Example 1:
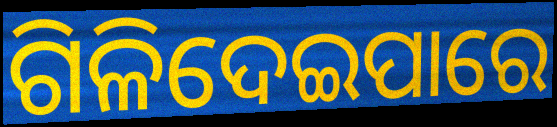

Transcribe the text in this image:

ଗିଳିଦେଇପାରେ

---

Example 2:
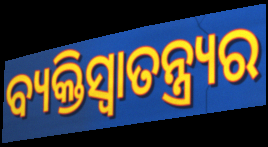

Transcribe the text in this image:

ବ୍ୟକ୍ତିସ୍ୱାତନ୍ତ୍ର୍ୟର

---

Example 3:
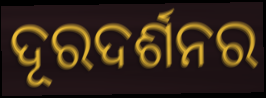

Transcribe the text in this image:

ଦୂରଦର୍ଶନର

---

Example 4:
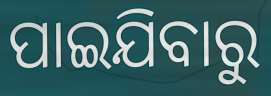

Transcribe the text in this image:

ପାଇଯିବାରୁ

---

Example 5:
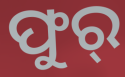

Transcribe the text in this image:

ଫୁର୍